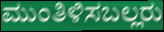
ಮುಂತಿಳಿಸಬಲ್ಲರು